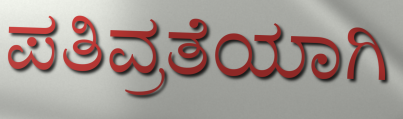
ಪತಿವ್ರತೆಯಾಗಿ